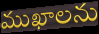
ముఖాలను